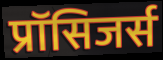
प्रॉसिजर्स